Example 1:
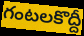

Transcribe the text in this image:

గంటలకొద్దీ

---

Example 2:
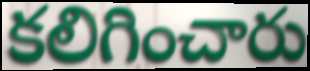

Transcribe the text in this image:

కలిగించారు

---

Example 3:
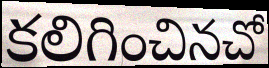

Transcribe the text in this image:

కలిగించినచో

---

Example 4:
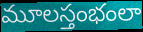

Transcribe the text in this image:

మూలస్తంభంలా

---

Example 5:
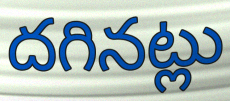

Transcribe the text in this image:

దగినట్లు